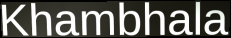
Khambhala